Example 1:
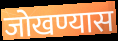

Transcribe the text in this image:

जोखण्यास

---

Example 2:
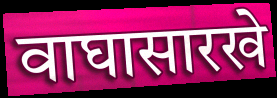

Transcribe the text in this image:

वाघासारखे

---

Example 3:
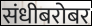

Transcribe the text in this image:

संधीबरोबर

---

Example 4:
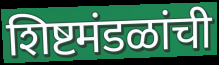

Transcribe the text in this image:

शिष्टमंडळांची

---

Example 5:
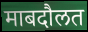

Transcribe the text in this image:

माबदौलत